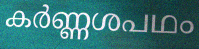
കർണ്ണശപഥം